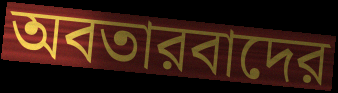
অবতারবাদের